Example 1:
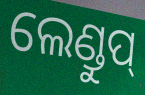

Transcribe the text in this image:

ଲେଣ୍ଡୁପ୍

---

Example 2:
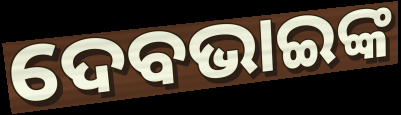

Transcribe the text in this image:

ଦେବଭାଇଙ୍କ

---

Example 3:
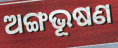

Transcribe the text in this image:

ଅଙ୍ଗଭୂଷଣ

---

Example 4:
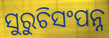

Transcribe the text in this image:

ସୁରୁଚିସଂପନ୍ନ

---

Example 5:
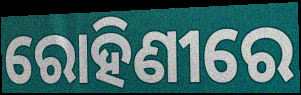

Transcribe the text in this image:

ରୋହିଣୀରେ